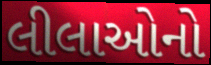
લીલાઓનો